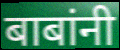
बाबांनी